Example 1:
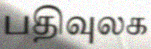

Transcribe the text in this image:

பதிவுலக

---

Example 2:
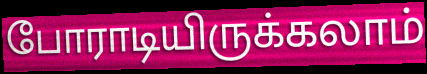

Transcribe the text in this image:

போராடியிருக்கலாம்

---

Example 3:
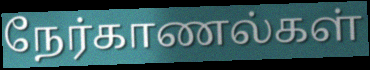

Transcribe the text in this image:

நேர்காணல்கள்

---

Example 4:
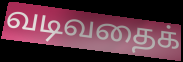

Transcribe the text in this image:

வடிவதைக்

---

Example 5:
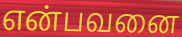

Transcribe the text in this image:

என்பவனை